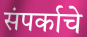
संपर्काचे